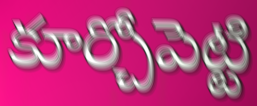
కూర్చోపెట్టి